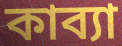
কাব্যা